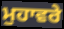
ਮੁਹਾਵਰੇ